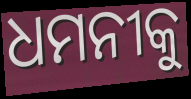
ଧମନୀକୁ